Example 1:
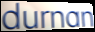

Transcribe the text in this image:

durnan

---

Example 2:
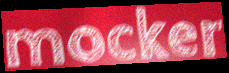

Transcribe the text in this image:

mocker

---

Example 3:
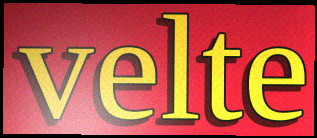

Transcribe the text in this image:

velte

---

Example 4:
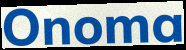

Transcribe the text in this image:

Onoma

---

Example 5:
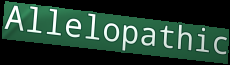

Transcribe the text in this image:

Allelopathic